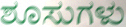
ಶೂಸುಗಳು